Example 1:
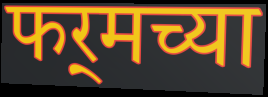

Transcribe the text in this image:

फर्मच्या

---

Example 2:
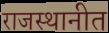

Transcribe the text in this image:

राजस्थानीत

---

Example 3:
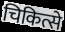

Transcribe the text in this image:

चिकित्से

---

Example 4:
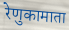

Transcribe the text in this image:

रेणुकामाता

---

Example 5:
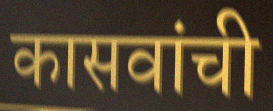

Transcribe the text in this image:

कासवांची